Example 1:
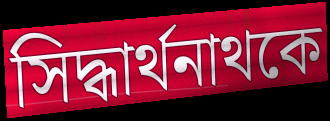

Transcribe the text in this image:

সিদ্ধার্থনাথকে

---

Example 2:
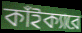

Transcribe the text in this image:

কাঁইক্যারে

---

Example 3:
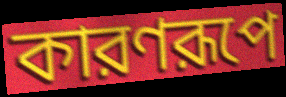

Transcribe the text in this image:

কারণরূপে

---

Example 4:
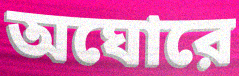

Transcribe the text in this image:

অঘোরে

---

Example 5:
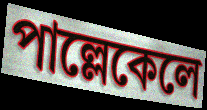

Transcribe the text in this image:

পাল্লেকেলে